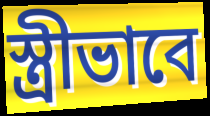
স্ত্রীভাবে